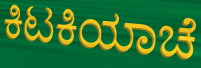
ಕಿಟಕಿಯಾಚೆ